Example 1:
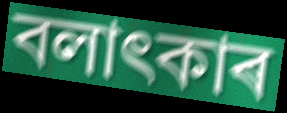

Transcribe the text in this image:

বলাৎকাৰ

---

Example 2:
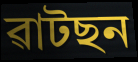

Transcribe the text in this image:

ৱাটছন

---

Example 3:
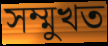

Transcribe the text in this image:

সম্মুখত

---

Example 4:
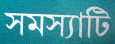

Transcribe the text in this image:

সমস্যাটি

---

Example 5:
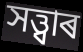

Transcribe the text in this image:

সত্ত্বাৰ